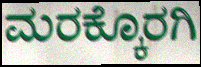
ಮರಕ್ಕೊರಗಿ